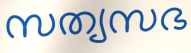
സത്യസഭ